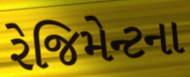
રેજિમેન્ટના